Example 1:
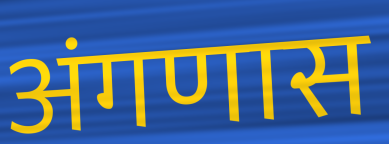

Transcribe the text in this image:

अंगणास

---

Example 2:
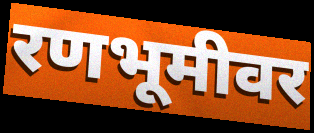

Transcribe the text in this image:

रणभूमीवर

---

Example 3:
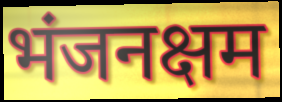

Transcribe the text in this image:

भंजनक्षम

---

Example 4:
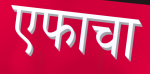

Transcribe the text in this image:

एफाचा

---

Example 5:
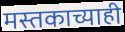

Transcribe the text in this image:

मस्तकाच्याही